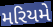
મરિયમે